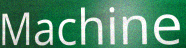
Machine